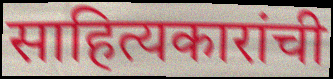
साहित्यकारांची